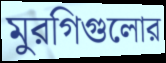
মুরগিগুলোর